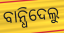
ବାନ୍ଧିଦେଲୁ